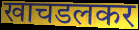
खाचडलकर